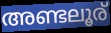
അണ്ടലൂര്